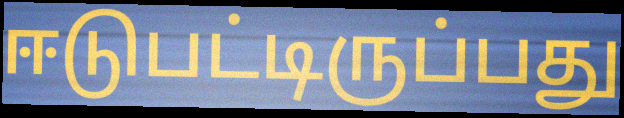
ஈடுபட்டிருப்பது